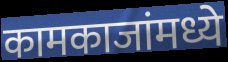
कामकाजांमध्ये